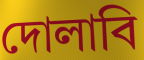
দোলাবি